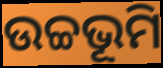
ଉଚ୍ଚଭୂମି